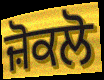
ਜ਼ੋਕਲੋ